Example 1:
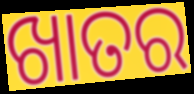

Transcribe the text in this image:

ଖାତର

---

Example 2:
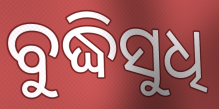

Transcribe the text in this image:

ବୁଦ୍ଧିସୁଧି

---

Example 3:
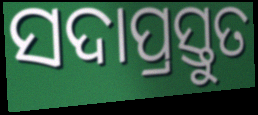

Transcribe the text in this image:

ସଦାପ୍ରସ୍ତୁତ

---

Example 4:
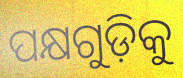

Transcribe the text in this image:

ପକ୍ଷଗୁଡ଼ିକୁ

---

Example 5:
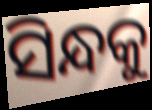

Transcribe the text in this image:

ସିନ୍ଧକୁ